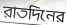
রাতদিনের